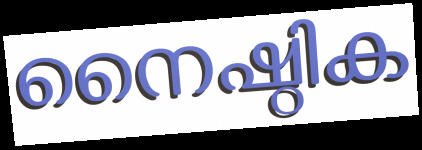
നൈഷ്ഠിക